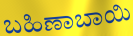
ಬಹಿಣಾಬಾಯಿ